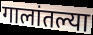
गालांतल्या